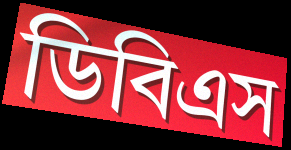
ডিবিএস